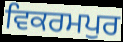
ਵਿਕਰਮਪੁਰ